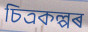
চিত্ৰকল্পৰ